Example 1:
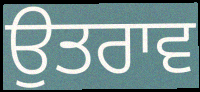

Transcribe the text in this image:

ਉਤਰਾਵ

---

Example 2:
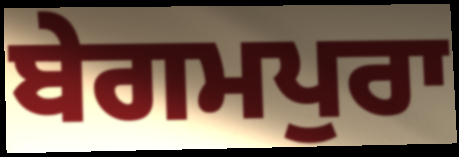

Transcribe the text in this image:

ਬੇਗਮਪੁਰਾ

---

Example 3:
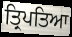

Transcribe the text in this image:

ਤ੍ਰਿਪਤਿਆ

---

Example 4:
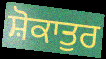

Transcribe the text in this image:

ਸ਼ੋਕਾਤੁਰ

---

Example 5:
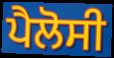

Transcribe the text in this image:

ਪੈਲੋਸੀ